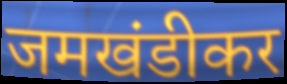
जमखंडीकर